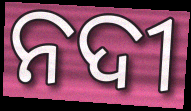
ନଦୀ